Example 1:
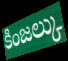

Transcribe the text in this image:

కింజల్కు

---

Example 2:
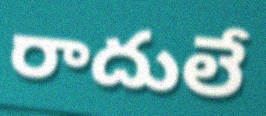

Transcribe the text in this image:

రాదులే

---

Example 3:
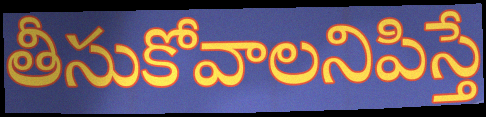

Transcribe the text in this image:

తీసుకోవాలనిపిస్తే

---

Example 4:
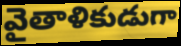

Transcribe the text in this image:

వైతాళికుడుగా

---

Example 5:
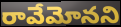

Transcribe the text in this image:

రావేమోనని